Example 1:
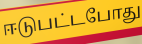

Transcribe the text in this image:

ஈடுபட்டபோது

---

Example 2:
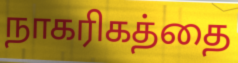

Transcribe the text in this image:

நாகரிகத்தை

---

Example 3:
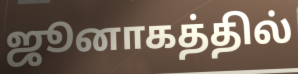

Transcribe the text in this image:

ஜூனாகத்தில்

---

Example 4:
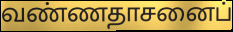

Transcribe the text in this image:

வண்ணதாசனைப்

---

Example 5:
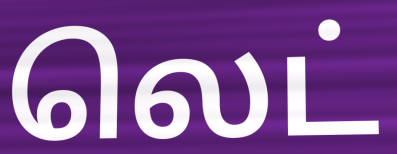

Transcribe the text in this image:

லெட்